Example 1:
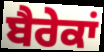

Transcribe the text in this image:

ਬੈਰੇਕਾਂ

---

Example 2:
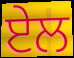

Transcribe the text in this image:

ਏਲ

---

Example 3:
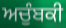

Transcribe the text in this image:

ਅਚੁੰਬਕੀ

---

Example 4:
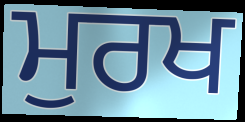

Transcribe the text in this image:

ਮੁਰਖ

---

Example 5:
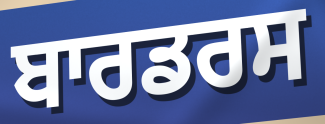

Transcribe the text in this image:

ਬਾਰਡਰਸ